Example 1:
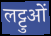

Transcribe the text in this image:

लट्टुओं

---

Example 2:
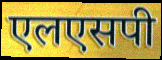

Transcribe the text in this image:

एलएसपी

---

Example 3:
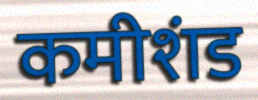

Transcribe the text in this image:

कमीशंड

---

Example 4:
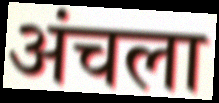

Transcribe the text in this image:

अंचला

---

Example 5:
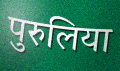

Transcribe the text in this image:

पुरुलिया